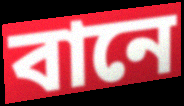
বানে